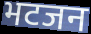
भटजन